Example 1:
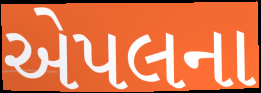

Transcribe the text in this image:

એપલના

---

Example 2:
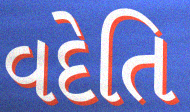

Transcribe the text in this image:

વદેતિ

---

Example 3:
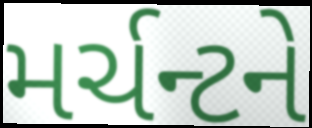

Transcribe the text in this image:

મર્ચન્ટને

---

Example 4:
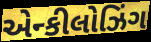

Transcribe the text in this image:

એન્કીલોઝિંગ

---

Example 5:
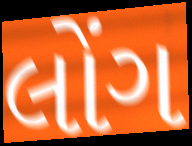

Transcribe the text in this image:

લોંગ